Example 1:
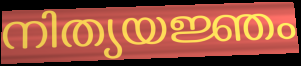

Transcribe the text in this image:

നിത്യയജ്ഞം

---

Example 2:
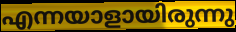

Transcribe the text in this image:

എന്നയാളായിരുന്നു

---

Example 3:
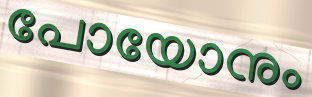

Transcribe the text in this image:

പോയോനും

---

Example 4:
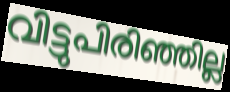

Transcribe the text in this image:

വിട്ടുപിരിഞ്ഞില്ല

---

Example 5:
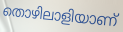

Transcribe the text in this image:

തൊഴിലാളിയാണ്